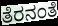
ತೆರನಂತೆ